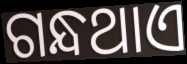
ଗନ୍ଧଥାଏ